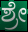
ಶ್ರೇ